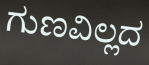
ಗುಣವಿಲ್ಲದ